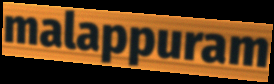
malappuram